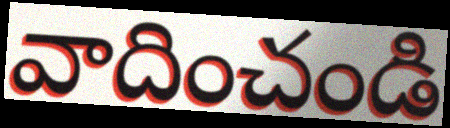
వాదించండి